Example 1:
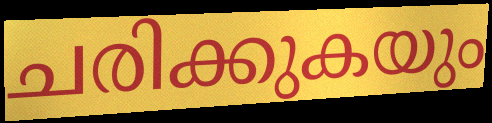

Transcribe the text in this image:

ചരിക്കുകയും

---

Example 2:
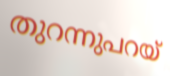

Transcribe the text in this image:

തുറന്നുപറയ്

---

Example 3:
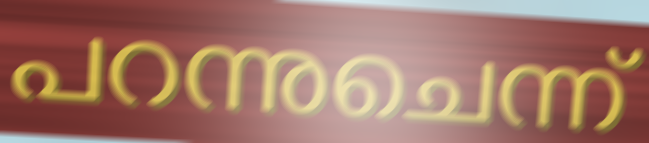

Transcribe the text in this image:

പറന്നുചെന്ന്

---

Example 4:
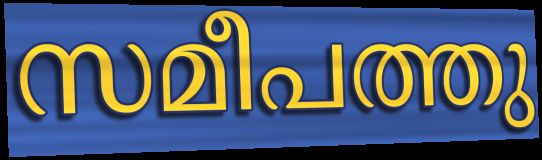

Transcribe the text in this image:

സമീപത്തു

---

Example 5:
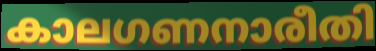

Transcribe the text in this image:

കാലഗണനാരീതി